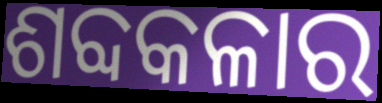
ଶବ୍ଦକଳାର